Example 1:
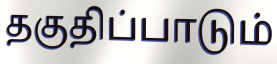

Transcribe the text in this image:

தகுதிப்பாடும்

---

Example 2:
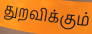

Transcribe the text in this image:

துறவிக்கும்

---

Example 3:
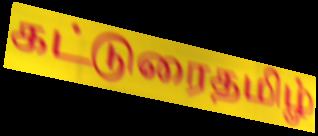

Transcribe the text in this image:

கட்டுரைதமிழ்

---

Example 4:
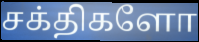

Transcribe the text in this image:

சக்திகளோ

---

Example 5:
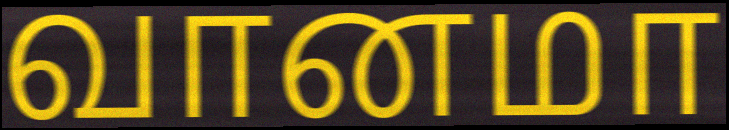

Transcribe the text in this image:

வானமா